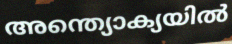
അന്ത്യൊക്യയിൽ